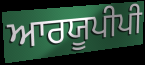
ਆਰਯੂਪੀਪੀ